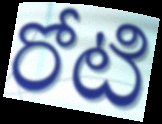
రోటి